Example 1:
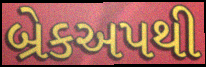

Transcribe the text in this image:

બ્રેકઅપથી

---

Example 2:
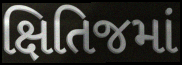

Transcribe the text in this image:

ક્ષિતિજમાં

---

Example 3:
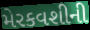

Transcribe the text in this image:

મેરકવશીની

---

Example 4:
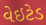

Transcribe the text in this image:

વેઇટેડ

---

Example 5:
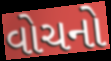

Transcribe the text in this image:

વોચનો